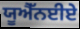
ਯੂਐੱਨਈਏ